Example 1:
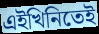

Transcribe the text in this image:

এইখিনিতেই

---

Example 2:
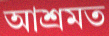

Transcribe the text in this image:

আশ্ৰমত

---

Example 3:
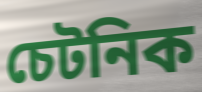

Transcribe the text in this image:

চেটনিক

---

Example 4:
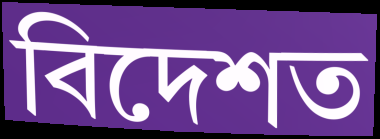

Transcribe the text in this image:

বিদেশত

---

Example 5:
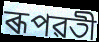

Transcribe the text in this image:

ৰূপৱতী